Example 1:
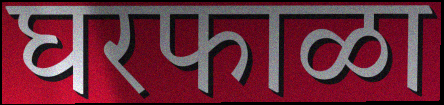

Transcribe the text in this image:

घरफाळा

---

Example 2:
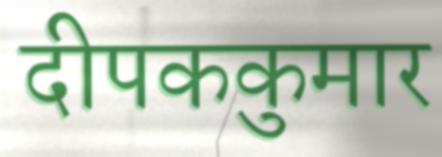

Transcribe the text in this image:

दीपककुमार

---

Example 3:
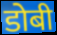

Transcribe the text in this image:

डोबी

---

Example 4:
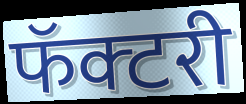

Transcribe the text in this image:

फॅक्‍टरी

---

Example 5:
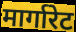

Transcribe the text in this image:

मार्गारेट